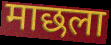
माछला